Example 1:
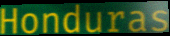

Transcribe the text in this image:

Honduras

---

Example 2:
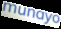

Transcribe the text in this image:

munayo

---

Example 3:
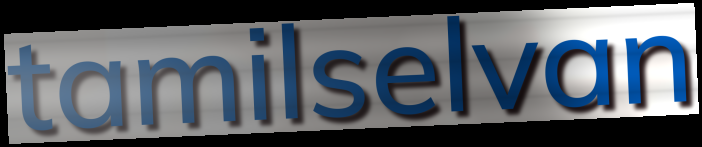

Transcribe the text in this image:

tamilselvan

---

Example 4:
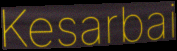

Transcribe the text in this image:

Kesarbai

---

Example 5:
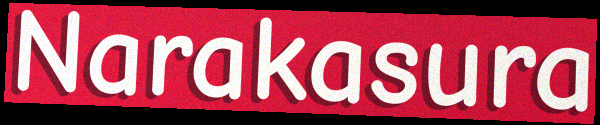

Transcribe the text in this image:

Narakasura